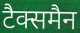
टैक्समैन